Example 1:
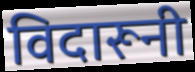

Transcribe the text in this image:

विदारूनी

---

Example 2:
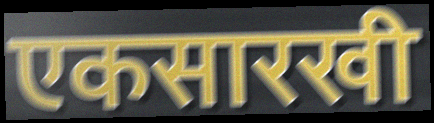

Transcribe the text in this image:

एकसारखी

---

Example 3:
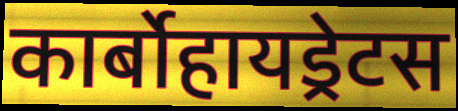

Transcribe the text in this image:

कार्बोहायड्रेटस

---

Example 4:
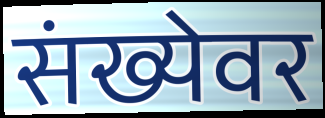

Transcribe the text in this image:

संख्येवर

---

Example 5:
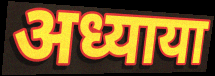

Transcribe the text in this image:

अध्याया